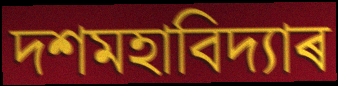
দশমহাবিদ্যাৰ